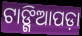
ଟାଙ୍ଗିଆପଡ଼ା